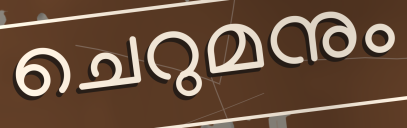
ചെറുമനും